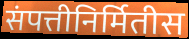
संपत्तीनिर्मितीस